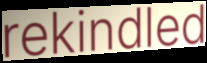
rekindled